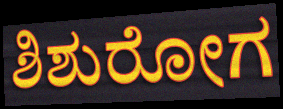
ಶಿಶುರೋಗ